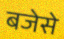
बजेसे